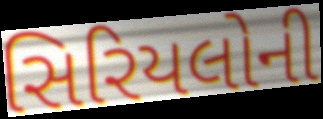
સિરિયલોની